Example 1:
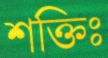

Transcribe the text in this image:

শক্তিঃ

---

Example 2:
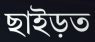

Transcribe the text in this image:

ছাইড়ত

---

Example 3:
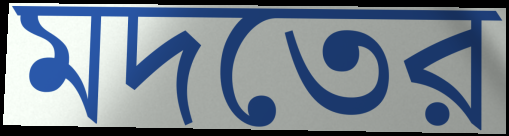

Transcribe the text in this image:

মদতের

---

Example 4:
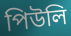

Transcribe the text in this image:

পিউলি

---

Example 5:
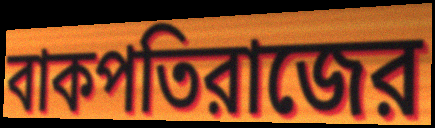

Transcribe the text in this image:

বাকপতিরাজের